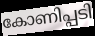
കോണിപ്പടി